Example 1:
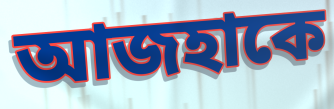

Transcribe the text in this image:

আজহাকে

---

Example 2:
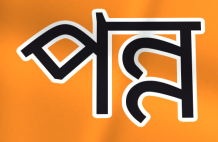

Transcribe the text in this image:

পন্ন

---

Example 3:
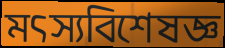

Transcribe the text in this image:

মৎস্যবিশেষজ্ঞ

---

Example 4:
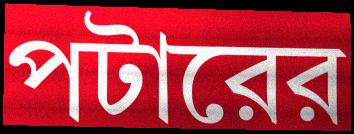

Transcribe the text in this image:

পটারের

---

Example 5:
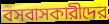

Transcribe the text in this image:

বসবাসকারীদের